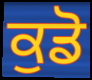
ਕੁਡੋ